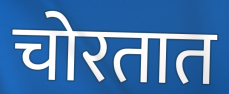
चोरतात